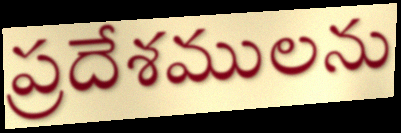
ప్రదేశములను